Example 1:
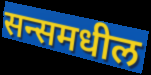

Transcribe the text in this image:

सन्समधील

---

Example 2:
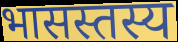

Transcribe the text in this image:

भासस्तस्य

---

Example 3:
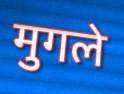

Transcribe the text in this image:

मुगले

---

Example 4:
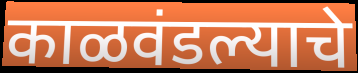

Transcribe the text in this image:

काळवंडल्याचे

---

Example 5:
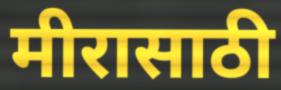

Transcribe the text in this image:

मीरासाठी